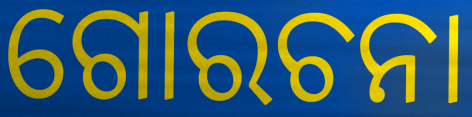
ଗୋରଚନା